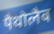
पैथोलैब